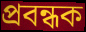
প্ৰবন্ধক